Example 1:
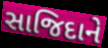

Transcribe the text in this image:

સાજિદાને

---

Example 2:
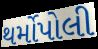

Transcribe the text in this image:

થર્મોપોલી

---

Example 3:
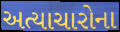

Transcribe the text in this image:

અત્યાચારોના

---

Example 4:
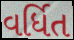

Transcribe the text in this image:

વર્ધિત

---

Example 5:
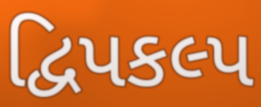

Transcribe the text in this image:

દ્વિપકલ્પ